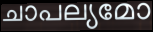
ചാപല്യമോ